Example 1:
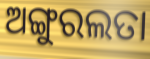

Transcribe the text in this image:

ଅଙ୍ଗୁରଲତା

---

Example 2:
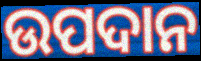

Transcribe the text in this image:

ଉପଦାନ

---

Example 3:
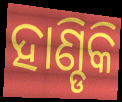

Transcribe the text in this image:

ହାଣ୍ଡିକି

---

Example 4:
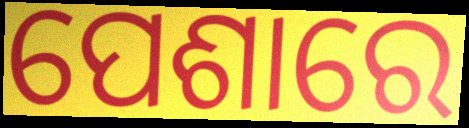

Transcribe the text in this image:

ପେଶାରେ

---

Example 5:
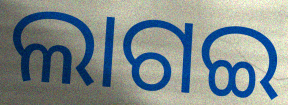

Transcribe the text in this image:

ଲାଗଇ